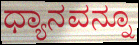
ಧ್ಯಾನವನ್ನೂ